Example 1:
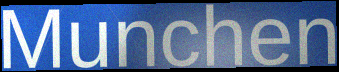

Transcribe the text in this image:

Munchen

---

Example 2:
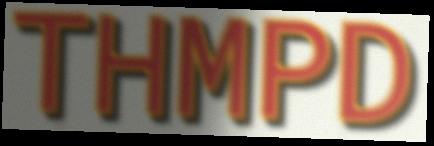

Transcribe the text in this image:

THMPD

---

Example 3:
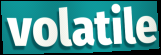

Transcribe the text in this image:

volatile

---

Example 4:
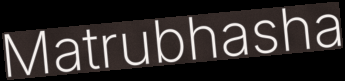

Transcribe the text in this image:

Matrubhasha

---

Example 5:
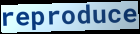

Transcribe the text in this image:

reproduce